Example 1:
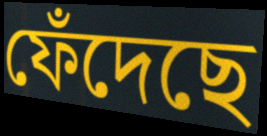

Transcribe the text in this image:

ফেঁদেছে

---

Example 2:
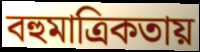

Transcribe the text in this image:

বহুমাত্রিকতায়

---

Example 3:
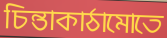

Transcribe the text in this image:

চিন্তাকাঠামোতে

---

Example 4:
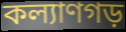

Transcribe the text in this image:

কল্যাণগড়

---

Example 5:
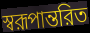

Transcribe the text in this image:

স্বরূপান্তরিত